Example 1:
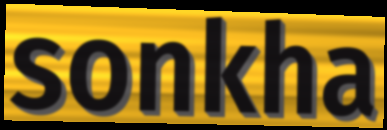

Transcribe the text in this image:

sonkha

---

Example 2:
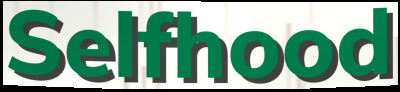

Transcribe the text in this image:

Selfhood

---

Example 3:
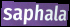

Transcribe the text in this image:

saphala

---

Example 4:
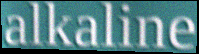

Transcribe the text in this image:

alkaline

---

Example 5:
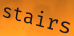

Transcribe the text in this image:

stairs